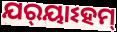
ଯର୍‌ୟାଽହମ୍